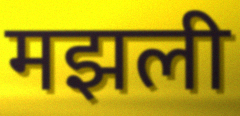
मझली